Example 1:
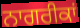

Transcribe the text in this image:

ਨਾਗਰੀਕਾਂ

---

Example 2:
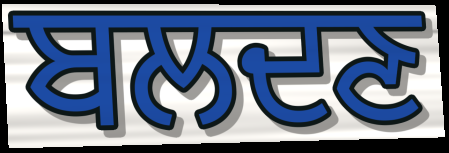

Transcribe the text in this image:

ਬਲਦਣ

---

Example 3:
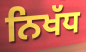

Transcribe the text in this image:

ਨਿਖੱਧ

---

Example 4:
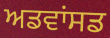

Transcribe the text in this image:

ਅਡਵਾਂਸਡ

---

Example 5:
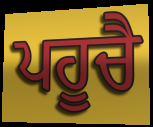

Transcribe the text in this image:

ਪਹੂਚੈ